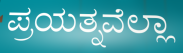
ಪ್ರಯತ್ನವೆಲ್ಲಾ